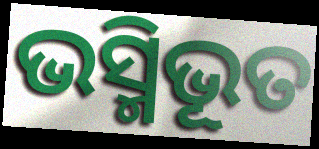
ଭସ୍ମିଭୂତ